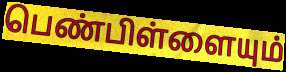
பெண்பிள்ளையும்